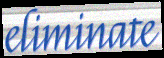
eliminate